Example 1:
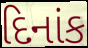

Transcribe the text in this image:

દિનાંક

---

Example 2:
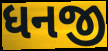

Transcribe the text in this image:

ધનજી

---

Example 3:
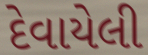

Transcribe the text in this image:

દેવાયેલી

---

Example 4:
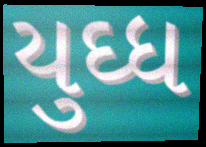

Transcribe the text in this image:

યુઘ્ધ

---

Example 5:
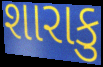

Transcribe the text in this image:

શારાકુ